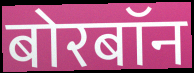
बोरबॉन